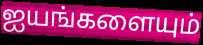
ஐயங்களையும்